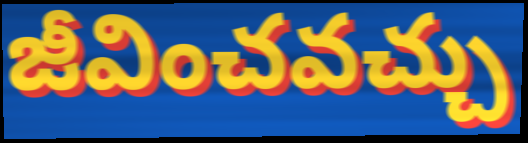
జీవించవచ్చు